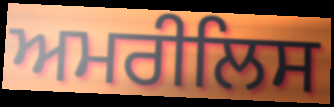
ਅਮਰੀਲਿਸ